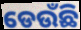
ଡେଉଁଛି